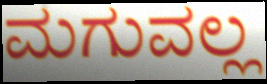
ಮಗುವಲ್ಲ